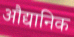
औद्यानिक